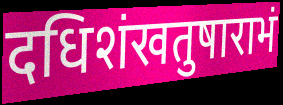
दधिशंखतुषाराभं